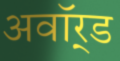
अवॉर्ड